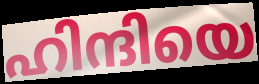
ഹിന്ദിയെ